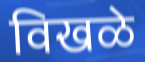
विखळे